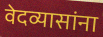
वेदव्यासांना